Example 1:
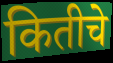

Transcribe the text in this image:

कितीचे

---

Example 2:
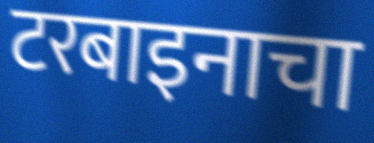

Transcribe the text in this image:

टरबाइनाचा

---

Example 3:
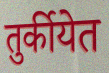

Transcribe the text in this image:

तुर्कीयेत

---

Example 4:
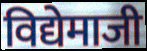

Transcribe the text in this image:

विद्येमाजी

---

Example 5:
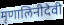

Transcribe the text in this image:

मृणालिनीदेवी